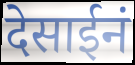
देसाईनं